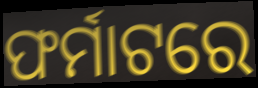
ଫର୍ମାଟରେ